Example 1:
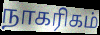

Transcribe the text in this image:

நாகரிகம்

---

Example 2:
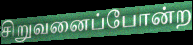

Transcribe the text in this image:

சிறுவனைப்போன்ற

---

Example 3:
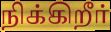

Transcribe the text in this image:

நிக்கிறீர்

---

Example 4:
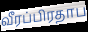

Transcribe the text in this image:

வீரப்பிரதாப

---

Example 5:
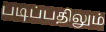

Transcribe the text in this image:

படிப்பதிலும்